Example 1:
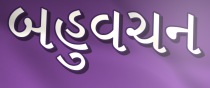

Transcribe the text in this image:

બહુવચન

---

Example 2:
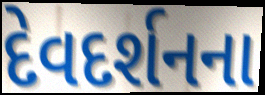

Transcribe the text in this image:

દેવદર્શનના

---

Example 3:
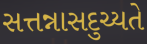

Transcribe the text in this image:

સત્તન્નાસદુચ્યતે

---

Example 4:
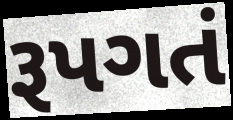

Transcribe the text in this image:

રૂપગતં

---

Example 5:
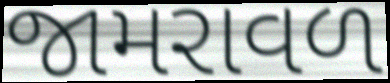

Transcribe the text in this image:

જામરાવળ